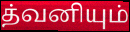
த்வனியும்